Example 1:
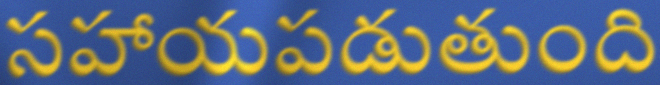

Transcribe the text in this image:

సహాయపడుతుంది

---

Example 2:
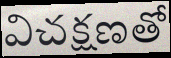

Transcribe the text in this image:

విచక్షణతో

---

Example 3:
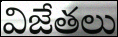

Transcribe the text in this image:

విజేతలు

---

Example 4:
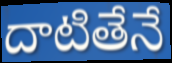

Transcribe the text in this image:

దాటితేనే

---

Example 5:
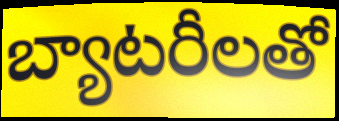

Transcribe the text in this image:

బ్యాటరీలతో